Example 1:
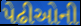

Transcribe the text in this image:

પેઢીઓની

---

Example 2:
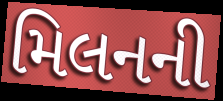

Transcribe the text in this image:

મિલનની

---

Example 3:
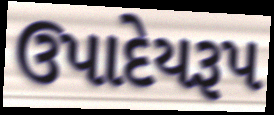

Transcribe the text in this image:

ઉપાદેયરૂપ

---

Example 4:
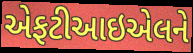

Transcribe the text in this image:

એફટીઆઇએલને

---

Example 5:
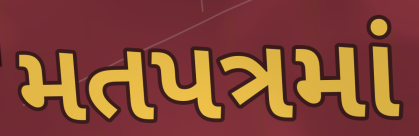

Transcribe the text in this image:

મતપત્રમાં